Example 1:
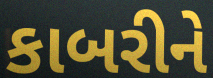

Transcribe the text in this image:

કાબરીને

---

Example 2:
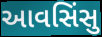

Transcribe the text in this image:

આવસિંસુ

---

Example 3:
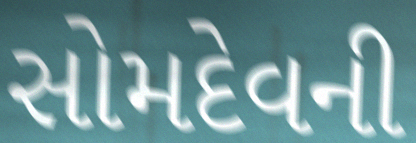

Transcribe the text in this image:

સોમદેવની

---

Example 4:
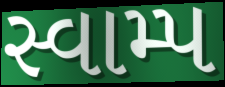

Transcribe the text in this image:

સ્વામ્પ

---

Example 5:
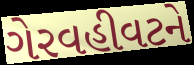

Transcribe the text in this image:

ગેરવહીવટને